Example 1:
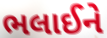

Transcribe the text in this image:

ભલાઈને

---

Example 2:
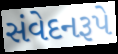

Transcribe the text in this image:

સંવેદનરૂપે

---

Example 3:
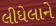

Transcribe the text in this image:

લીધેલાને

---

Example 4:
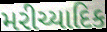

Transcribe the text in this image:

મરીચ્યાદિક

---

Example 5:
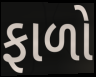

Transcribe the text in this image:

ફાળો